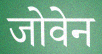
जोवेन